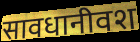
सावधानीवश